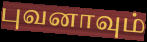
புவனாவும்